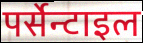
पर्सेन्टाइल